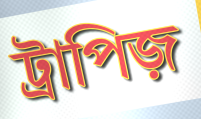
ট্রাপিজ়